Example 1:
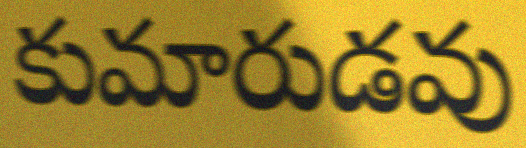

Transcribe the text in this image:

కుమారుడవు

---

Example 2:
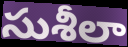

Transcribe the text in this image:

సుశీలా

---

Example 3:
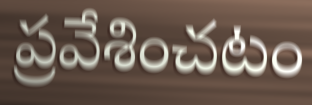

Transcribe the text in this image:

ప్రవేశించటం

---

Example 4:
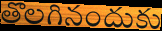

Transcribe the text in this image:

తొలగినందుకు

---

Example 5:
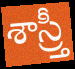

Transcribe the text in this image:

శాస్ర్తీ